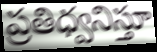
ప్రతిధ్వనిస్తూ